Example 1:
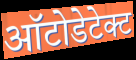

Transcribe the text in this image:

ऑटोडेटेक्ट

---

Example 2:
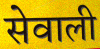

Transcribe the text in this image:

सेवाली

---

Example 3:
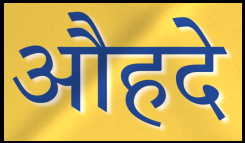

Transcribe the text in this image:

औहदे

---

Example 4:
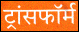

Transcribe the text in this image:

ट्रांसफॉर्म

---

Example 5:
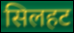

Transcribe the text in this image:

सिलहट